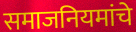
समाजनियमांचे